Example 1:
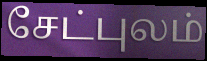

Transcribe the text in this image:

சேட்புலம்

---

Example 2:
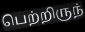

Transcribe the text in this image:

பெற்றிருந்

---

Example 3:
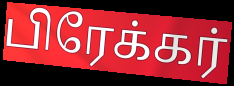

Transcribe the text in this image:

பிரேக்கர்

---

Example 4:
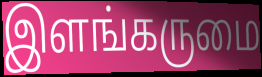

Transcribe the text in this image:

இளங்கருமை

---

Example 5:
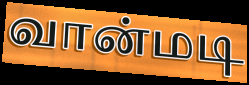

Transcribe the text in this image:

வான்மடி